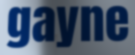
gayne